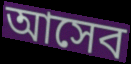
আসেব